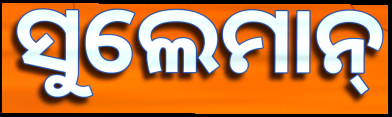
ସୁଲେମାନ୍